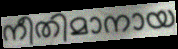
നീതിമാനായ